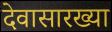
देवासारख्या